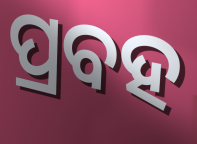
ପ୍ରବହ